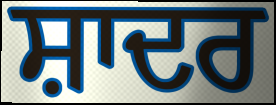
ਸ਼ਾਦਰ